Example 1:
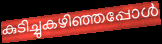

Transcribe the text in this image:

കുടിച്ചുകഴിഞ്ഞപ്പോൾ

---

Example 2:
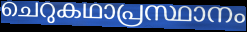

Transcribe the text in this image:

ചെറുകഥാപ്രസ്ഥാനം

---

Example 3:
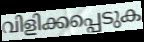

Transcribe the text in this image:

വിളിക്കപ്പെടുക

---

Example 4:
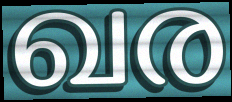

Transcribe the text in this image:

ഖര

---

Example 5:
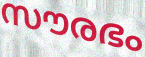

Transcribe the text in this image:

സൗരഭം